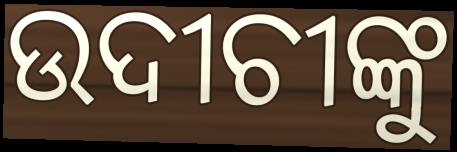
ଉଦୀଚୀଙ୍କୁ